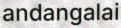
andangalai